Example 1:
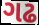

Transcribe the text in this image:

ગઢ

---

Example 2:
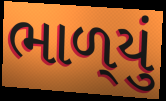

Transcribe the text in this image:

ભાળ્‌યું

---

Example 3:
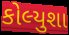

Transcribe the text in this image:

કોલ્યુશા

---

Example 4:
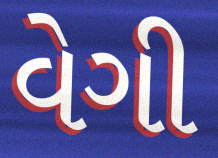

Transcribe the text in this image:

વેગી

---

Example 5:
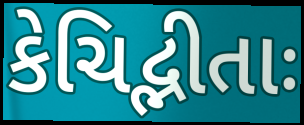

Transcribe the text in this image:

કેચિદ્ભીતાઃ